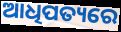
ଆଧିପତ୍ୟରେ